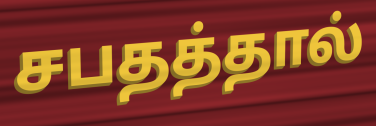
சபதத்தால்